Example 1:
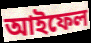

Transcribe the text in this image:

আইফেল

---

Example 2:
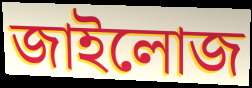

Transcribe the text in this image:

জাইলোজ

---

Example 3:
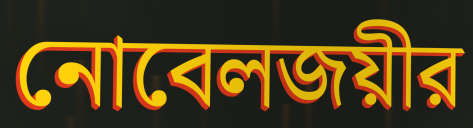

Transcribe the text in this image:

নোবেলজয়ীর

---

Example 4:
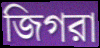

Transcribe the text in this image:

জিগরা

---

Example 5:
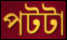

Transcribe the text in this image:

পটটা